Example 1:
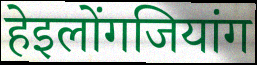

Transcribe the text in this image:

हेइलोंगजियांग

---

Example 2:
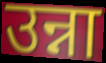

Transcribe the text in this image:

उन्ना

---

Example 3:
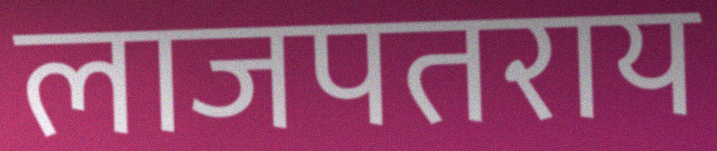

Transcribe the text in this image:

लाजपतराय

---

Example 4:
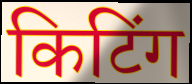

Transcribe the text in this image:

किटिंग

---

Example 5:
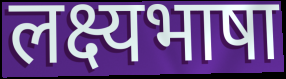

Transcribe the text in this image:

लक्ष्यभाषा